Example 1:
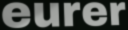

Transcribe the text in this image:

eurer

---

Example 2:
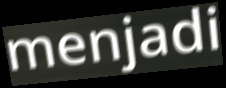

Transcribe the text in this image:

menjadi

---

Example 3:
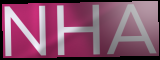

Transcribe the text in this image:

NHA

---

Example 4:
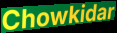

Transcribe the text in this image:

Chowkidar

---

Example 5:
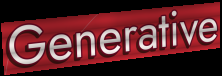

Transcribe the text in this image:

Generative